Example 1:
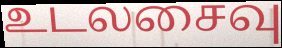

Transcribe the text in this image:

உடலசைவு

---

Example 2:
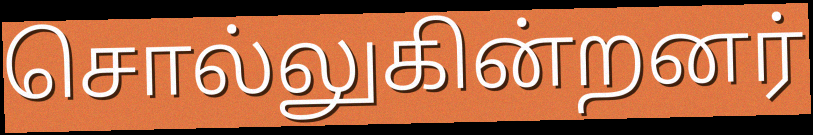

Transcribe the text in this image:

சொல்லுகின்றனர்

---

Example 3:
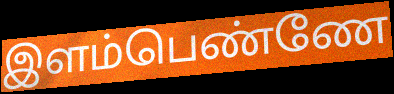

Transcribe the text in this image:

இளம்பெண்ணே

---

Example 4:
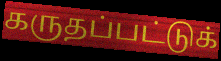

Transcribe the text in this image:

கருதப்பட்டுக்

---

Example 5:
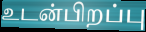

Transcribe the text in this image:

உடன்பிறப்பு